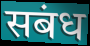
सबंध